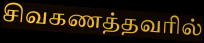
சிவகணத்தவரில்